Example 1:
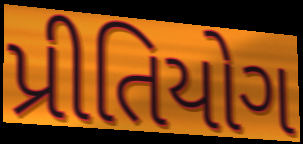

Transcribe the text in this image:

પ્રીતિયોગ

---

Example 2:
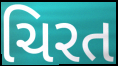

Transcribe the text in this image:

ચિરત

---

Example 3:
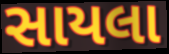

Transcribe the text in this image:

સાયલા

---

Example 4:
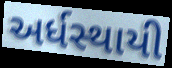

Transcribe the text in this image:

અર્ધસ્થાયી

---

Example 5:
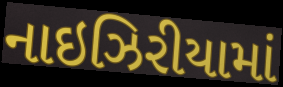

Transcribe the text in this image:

નાઇઝિરીયામાં